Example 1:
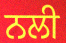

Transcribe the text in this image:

ਨਲੀ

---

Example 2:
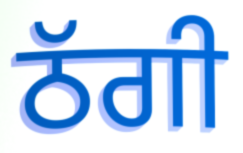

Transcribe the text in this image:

ਠੱਗੀ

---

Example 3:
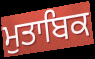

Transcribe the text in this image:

ਮੁਤਾਬਿਕ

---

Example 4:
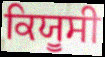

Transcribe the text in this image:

ਕਿਯੂਸੀ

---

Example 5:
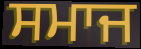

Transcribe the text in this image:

ਸਮਾਜ